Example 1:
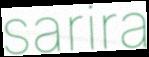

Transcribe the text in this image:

sarira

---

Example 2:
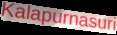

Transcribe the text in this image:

Kalapurnasuri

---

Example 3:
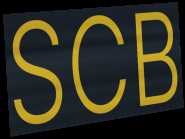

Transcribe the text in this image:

SCB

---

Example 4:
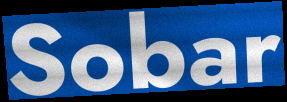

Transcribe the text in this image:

Sobar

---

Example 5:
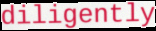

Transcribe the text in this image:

diligently